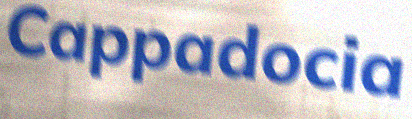
Cappadocia